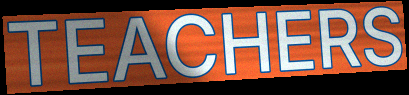
TEACHERS